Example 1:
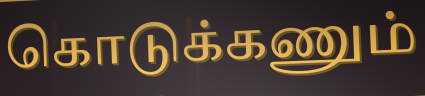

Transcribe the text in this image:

கொடுக்கணும்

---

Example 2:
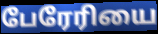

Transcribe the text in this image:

பேரேரியை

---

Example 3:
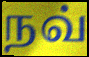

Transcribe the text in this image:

நவ்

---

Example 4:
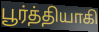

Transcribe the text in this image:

பூர்த்தியாகி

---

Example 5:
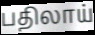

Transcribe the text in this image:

பதிலாய்